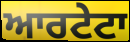
ਆਰਟੇਟਾ